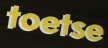
toetse